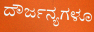
ದೌರ್ಜನ್ಯಗಳೂ